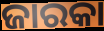
ଜାରକା